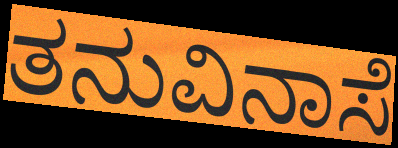
ತನುವಿನಾಸೆ